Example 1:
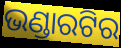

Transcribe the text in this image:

ଭଣ୍ଡାରଟିର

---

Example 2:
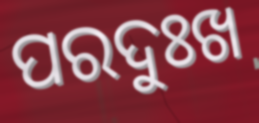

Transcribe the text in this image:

ପରଦୁଃଖ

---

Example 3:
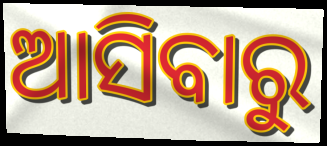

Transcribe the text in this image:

ଆସିବାରୁ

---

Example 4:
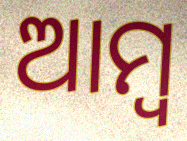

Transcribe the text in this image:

ଆମ୍ୱ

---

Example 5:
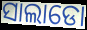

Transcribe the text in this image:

ସାଲାଡୋ